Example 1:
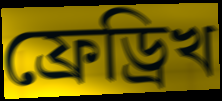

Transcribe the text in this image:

ফ্ৰেড্ৰিখ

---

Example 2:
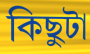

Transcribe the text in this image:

কিছুটা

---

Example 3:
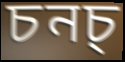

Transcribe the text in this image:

চনচ্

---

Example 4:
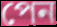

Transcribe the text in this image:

পেন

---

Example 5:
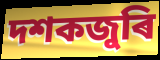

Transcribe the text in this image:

দশকজুৰি